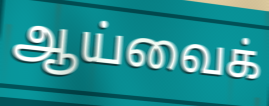
ஆய்வைக்